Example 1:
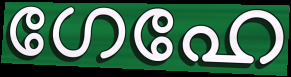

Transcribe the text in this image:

ഗേഹേ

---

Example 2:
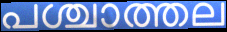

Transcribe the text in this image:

പശ്ചാത്തല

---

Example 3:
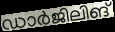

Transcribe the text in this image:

ഡാർജിലിങ്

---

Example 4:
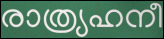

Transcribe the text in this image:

രാത്ര്യഹനീ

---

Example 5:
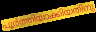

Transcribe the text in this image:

പൂർത്തിയാക്കിയതിനു